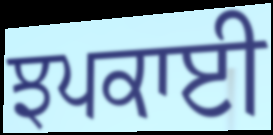
ਝਪਕਾਈ